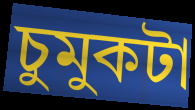
চুমুকটা